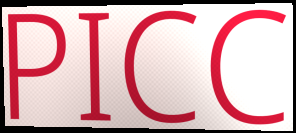
PICC